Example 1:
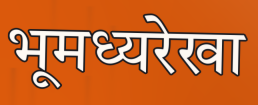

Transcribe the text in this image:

भूमध्यरेखा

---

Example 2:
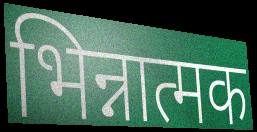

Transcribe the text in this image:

भिन्नात्मक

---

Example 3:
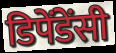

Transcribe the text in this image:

डिपेंडेंसी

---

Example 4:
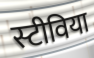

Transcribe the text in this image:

स्‍टीविया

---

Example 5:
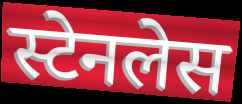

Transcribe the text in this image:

स्टेनलेस